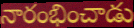
నారంభించాడు